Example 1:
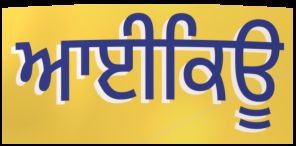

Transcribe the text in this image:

ਆਈਕਿਊ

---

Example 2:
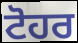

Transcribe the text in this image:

ਟੋਹਰ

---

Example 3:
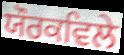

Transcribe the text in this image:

ਯੌਰਕਵਿਲੇ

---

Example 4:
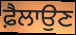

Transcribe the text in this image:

ਫ਼ੈਲਾਉਣ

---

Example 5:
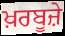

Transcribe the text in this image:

ਖ਼ਰਬੂਜ਼ੇ